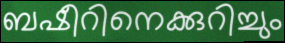
ബഷീറിനെക്കുറിച്ചും